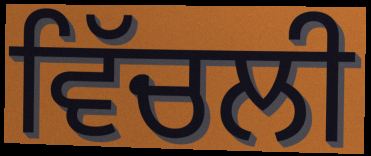
ਵਿੱਚਲੀ